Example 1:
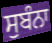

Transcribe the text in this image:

ਸੁਬੰਨਾ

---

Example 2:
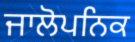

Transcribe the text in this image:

ਜਾਲੋਪਨਿਕ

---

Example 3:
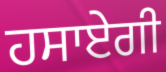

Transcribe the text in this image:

ਹਸਾਏਗੀ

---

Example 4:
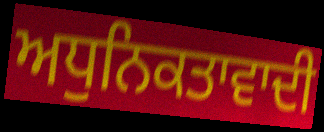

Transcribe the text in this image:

ਅਧੁਨਿਕਤਾਵਾਦੀ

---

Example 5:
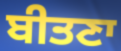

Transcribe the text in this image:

ਬੀਤਣਾ